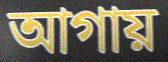
আগায়